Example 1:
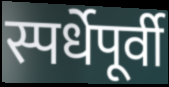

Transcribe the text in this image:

स्पर्धेपूर्वी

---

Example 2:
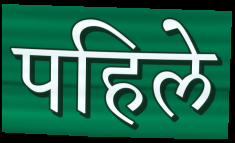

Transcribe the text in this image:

पहिले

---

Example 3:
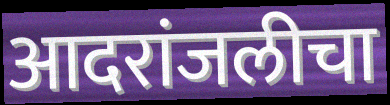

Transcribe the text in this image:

आदरांजलीचा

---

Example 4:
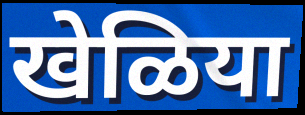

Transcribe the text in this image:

खेळिया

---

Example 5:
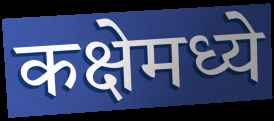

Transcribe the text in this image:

कक्षेमध्ये